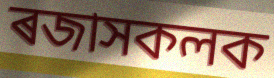
ৰজাসকলক